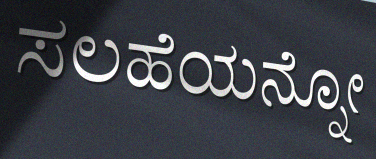
ಸಲಹೆಯನ್ನೋ